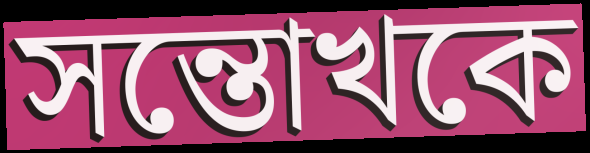
সন্তোখকে